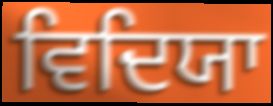
ਵਿਦਿਯਾ